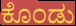
ಕೊಂಡು